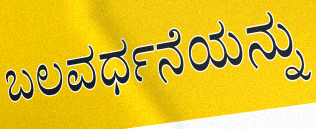
ಬಲವರ್ಧನೆಯನ್ನು